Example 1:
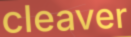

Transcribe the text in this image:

cleaver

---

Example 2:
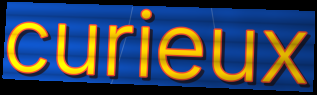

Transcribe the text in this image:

curieux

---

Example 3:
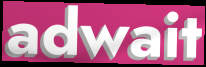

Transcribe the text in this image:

adwait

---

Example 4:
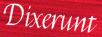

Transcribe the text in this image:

Dixerunt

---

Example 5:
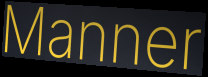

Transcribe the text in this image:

Manner